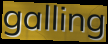
galling